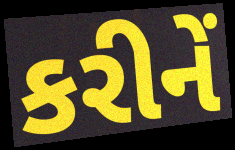
કરીનેં